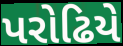
પરોઢિયે